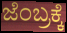
ಜೆಂಬ್ರಕ್ಕೆ